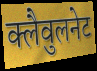
क्लैवुलनेट